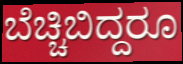
ಬೆಚ್ಚಿಬಿದ್ದರೂ